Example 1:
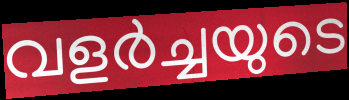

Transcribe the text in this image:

വളർച്ചയുടെ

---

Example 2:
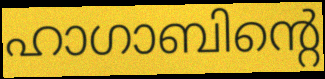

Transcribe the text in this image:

ഹാഗാബിന്റെ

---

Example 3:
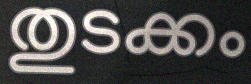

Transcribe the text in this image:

തുടക്കം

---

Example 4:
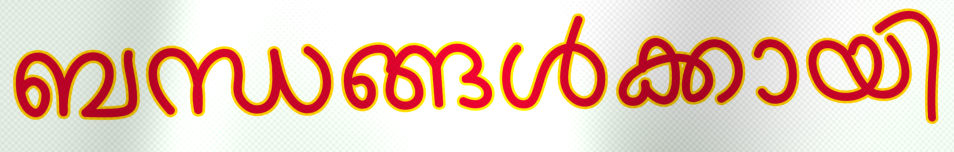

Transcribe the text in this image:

ബന്ധങ്ങൾക്കായി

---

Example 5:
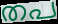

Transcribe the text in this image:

തപ